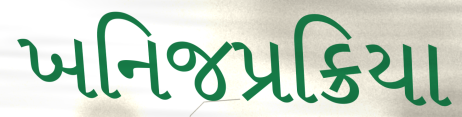
ખનિજપ્રક્રિયા